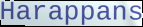
Harappans